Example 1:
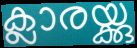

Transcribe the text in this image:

ക്ലാരയ്ക്കു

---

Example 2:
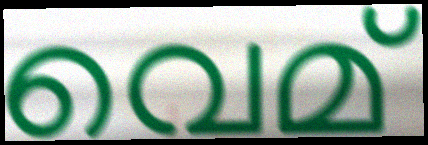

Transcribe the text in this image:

വെമ്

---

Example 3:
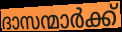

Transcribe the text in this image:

ദാസന്മാർക്ക്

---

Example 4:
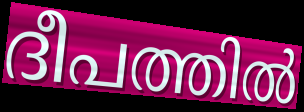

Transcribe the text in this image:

ദീപത്തിൽ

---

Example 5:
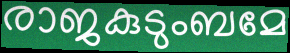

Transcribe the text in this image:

രാജകുടുംബമേ